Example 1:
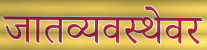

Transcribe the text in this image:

जातव्यवस्थेवर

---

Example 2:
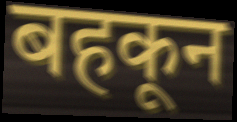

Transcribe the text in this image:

बहकून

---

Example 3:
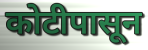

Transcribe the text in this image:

कोटीपासून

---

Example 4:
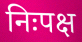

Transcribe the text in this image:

निःपक्ष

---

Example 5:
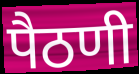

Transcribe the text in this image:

पैठणी